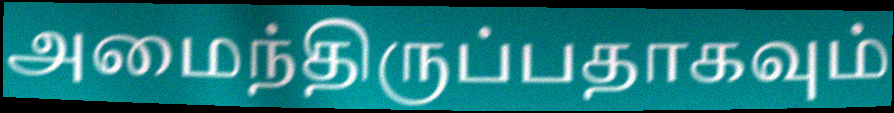
அமைந்திருப்பதாகவும்